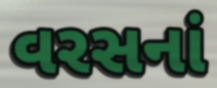
વરસનાં